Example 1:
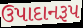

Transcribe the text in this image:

ઉપાદાનરૂપ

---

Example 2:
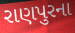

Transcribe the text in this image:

રાણપુરના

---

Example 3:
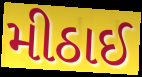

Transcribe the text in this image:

મીઠાઈ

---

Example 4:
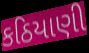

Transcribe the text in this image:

કઠિયાણી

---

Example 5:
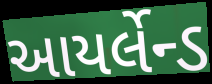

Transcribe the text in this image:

આયર્લેન્ડ